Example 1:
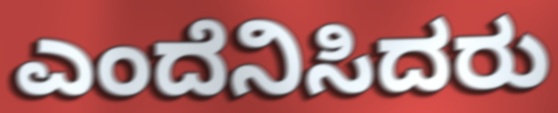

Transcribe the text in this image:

ಎಂದೆನಿಸಿದರು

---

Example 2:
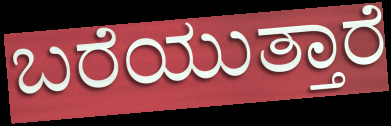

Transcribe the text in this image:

ಬರೆಯುತ್ತಾರೆ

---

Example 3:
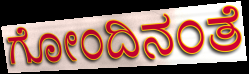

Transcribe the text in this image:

ಗೋಂದಿನಂತೆ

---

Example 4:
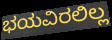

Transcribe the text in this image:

ಭಯವಿರಲಿಲ್ಲ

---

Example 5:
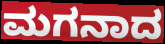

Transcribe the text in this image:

ಮಗನಾದ